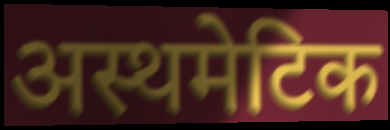
अस्थमेटिक